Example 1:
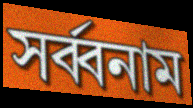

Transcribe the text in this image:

সৰ্ব্বনাম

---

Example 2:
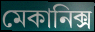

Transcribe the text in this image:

মেকানিক্স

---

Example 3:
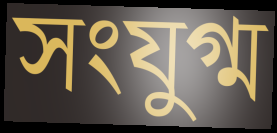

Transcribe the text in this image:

সংযুগ্ম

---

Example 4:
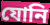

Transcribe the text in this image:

যোনি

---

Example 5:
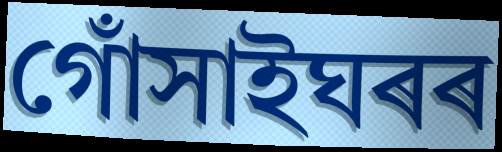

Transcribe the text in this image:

গোঁসাইঘৰৰ